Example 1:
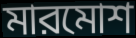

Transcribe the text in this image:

মারমোশ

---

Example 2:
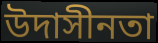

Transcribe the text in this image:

উদাসীনতা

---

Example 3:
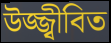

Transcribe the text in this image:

উজ্জ্বীবিত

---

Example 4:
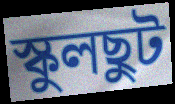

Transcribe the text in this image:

স্কুলছুট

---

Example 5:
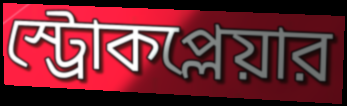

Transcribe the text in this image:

স্ট্রোকপ্লেয়ার